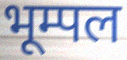
भूम्पल